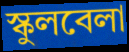
স্কুলবেলা